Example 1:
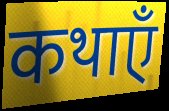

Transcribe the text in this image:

कथाएँ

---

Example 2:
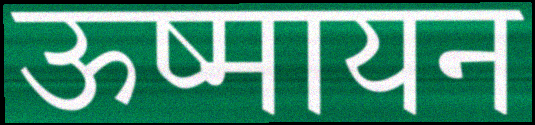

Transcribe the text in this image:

ऊष्मायन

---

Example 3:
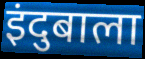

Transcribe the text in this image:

इंदुबाला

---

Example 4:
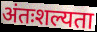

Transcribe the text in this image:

अंतःशल्यता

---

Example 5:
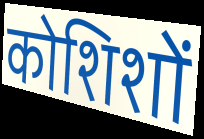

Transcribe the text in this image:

कोशिशों